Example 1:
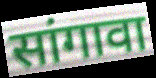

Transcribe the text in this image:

सांगावा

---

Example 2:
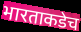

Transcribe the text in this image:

भारताकडेच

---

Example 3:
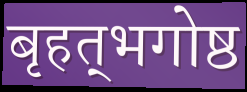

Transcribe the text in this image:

बृहत्‌भगोष्ठ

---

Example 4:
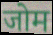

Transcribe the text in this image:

जोम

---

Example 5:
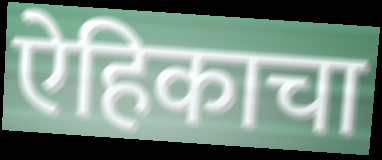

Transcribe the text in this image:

ऐहिकाचा